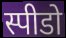
स्पीडो